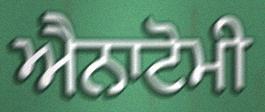
ਐਨਾਟੋਮੀ